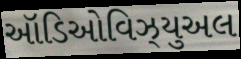
ઑડિઓવિઝ્યુઅલ